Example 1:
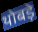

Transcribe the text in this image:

थोबड़े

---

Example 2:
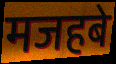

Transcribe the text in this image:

मजहबे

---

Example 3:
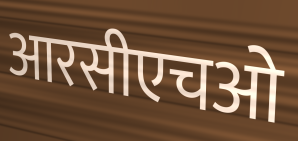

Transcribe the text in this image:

आरसीएचओ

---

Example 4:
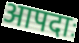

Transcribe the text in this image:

आपदाः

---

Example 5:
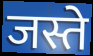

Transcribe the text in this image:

जस्ते